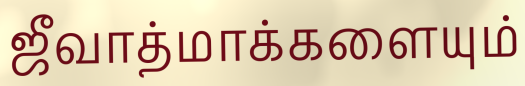
ஜீவாத்மாக்களையும்